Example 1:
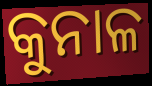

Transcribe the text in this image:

କୁନାଳ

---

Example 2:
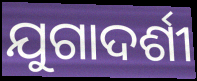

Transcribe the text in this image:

ଯୁଗାଦର୍ଶୀ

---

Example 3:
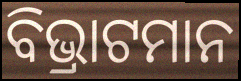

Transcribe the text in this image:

ବିଭ୍ରାଟମାନ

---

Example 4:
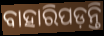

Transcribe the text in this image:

ବାହାରିପଡ଼ନ୍ତି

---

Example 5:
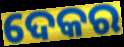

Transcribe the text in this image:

ଦେକର